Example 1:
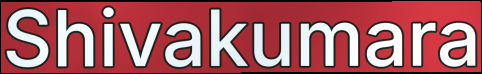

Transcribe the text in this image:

Shivakumara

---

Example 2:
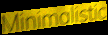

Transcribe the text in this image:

Minimalistic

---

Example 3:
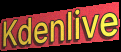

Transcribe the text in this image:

Kdenlive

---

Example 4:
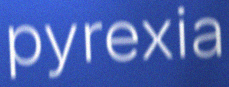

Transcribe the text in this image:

pyrexia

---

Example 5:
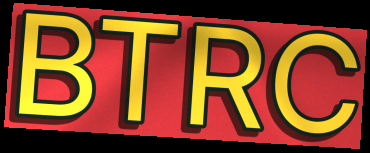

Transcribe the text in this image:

BTRC